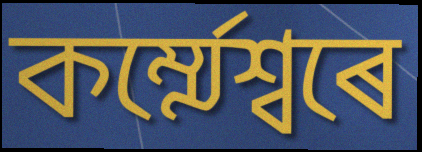
কৰ্ম্মেশ্বৰে